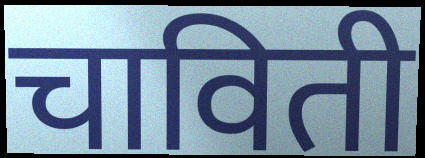
चाविती